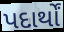
પદાર્થોં